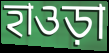
হাওড়া